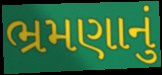
ભ્રમણાનું